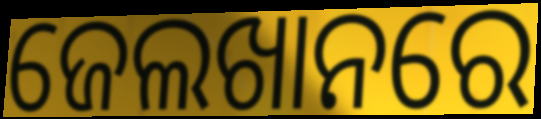
ଜେଲଖାନରେ